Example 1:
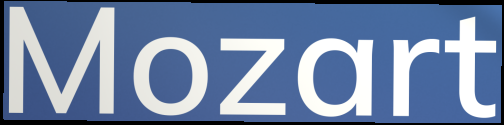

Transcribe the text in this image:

Mozart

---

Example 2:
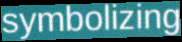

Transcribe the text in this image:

symbolizing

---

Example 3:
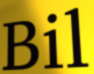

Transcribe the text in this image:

Bil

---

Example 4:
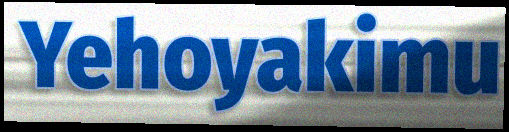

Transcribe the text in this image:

Yehoyakimu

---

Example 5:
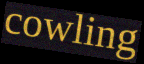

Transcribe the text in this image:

cowling